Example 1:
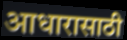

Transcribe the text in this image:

आधारासाठी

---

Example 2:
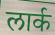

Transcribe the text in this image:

लार्क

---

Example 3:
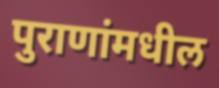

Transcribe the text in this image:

पुराणांमधील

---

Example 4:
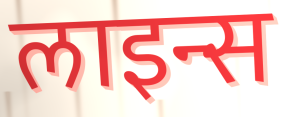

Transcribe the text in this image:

लाइन्स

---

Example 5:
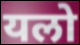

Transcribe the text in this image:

यलो